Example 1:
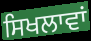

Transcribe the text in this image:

ਸਿਖਲਾਵਾਂ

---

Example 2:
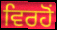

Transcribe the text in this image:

ਵਿਰਹੋਂ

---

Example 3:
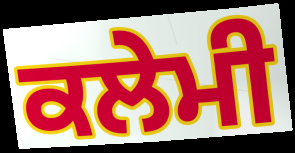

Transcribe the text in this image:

ਕਲੇਮੀ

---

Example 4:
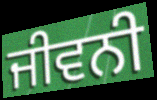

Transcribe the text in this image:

ਜੀਵਨੀ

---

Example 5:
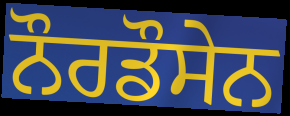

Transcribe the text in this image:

ਨੌਰਡੌਸੇਨ